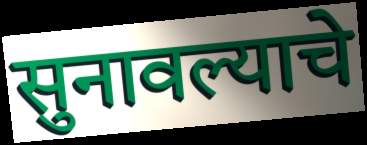
सुनावल्याचे